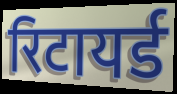
रिटायर्ड